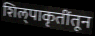
शिल्पाकृतींतून